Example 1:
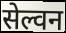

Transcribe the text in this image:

सेल्वन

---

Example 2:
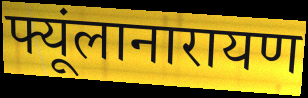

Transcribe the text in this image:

फ्यूंलानारायण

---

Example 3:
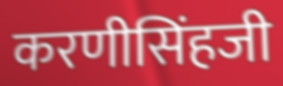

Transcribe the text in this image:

करणीसिंहजी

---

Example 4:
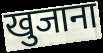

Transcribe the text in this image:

खुजाना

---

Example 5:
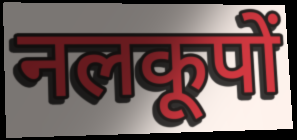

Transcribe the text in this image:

नलकूपों